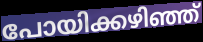
പോയിക്കഴിഞ്ഞ്